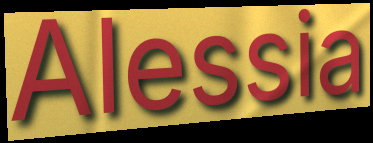
Alessia